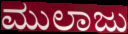
ಮುಲಾಜು